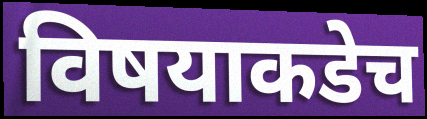
विषयाकडेच